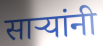
साऱ्यांनी